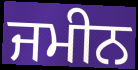
ਜਮੀਨ